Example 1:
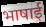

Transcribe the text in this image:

भाषाई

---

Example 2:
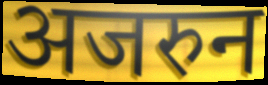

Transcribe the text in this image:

अजरुन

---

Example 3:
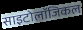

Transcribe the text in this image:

साइटोलॉजिकल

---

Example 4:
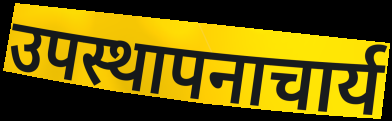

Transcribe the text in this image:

उपस्थापनाचार्य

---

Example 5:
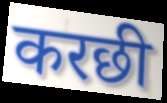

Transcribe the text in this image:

करछी